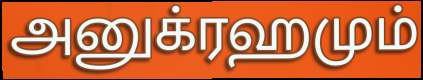
அனுக்ரஹமும்